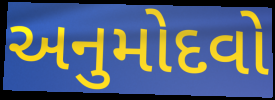
અનુમોદવો